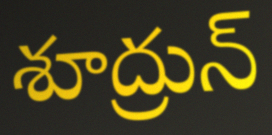
శూద్రున్